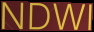
NDWI